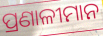
ପ୍ରଣାଳୀମାନ